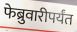
फेब्रुवारीपर्यंत